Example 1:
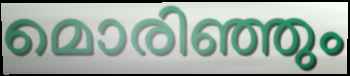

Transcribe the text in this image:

മൊരിഞ്ഞും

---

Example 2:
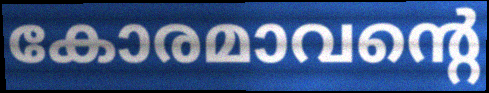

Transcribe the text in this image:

കോരമാവന്റെ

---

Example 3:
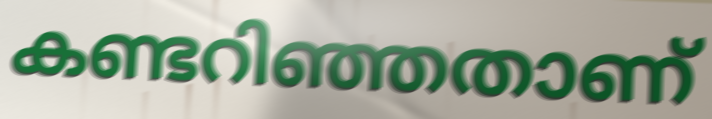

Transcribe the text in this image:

കണ്ടറിഞ്ഞതാണ്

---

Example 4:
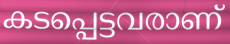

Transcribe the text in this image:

കടപ്പെട്ടവരാണ്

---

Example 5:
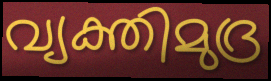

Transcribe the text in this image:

വ്യക്തിമുദ്ര